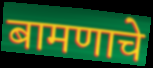
बामणाचे